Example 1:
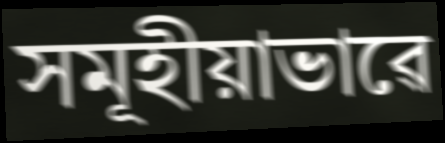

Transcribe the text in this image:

সমূহীয়াভাৱে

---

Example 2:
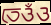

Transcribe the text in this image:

তেওঁও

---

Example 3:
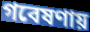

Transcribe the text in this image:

গবেষণায়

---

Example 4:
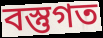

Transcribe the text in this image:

বস্তুগত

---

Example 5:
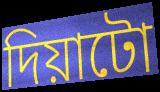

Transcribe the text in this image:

দিয়াটো